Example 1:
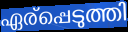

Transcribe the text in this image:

ഏര്പ്പെടുത്തി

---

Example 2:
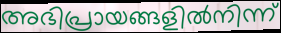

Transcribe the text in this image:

അഭിപ്രായങ്ങളിൽനിന്ന്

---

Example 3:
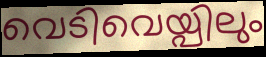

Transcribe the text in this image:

വെടിവെയ്പിലും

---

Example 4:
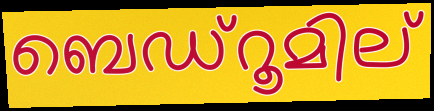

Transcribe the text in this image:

ബെഡ്റൂമില്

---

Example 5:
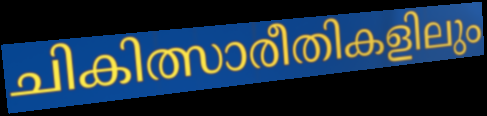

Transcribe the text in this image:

ചികിത്സാരീതികളിലും